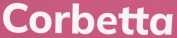
Corbetta